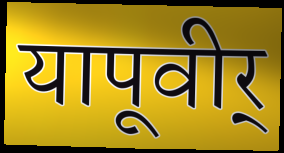
यापूवीर्